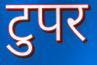
टुपर